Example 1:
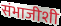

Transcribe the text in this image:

संभाजीशी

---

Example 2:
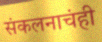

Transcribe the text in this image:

संकलनाचंही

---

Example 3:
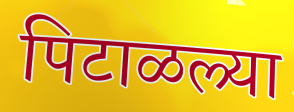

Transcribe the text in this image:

पिटाळल्या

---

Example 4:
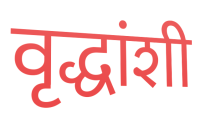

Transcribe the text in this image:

वृद्धांशी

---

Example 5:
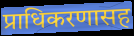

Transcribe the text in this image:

प्राधिकरणासह